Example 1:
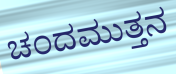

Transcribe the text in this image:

ಚಂದಮುತ್ತನ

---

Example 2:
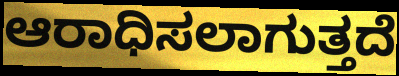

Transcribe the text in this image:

ಆರಾಧಿಸಲಾಗುತ್ತದೆ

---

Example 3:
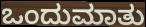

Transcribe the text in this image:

ಒಂದುಮಾತು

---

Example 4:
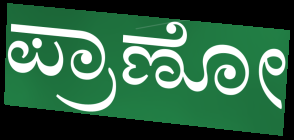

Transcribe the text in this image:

ಪ್ರಾಣೋ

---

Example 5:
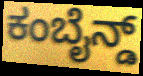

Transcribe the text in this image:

ಕಂಬೈನ್ಡ್